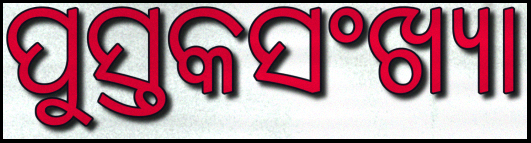
ପୁସ୍ତକସଂଖ୍ୟା